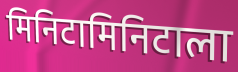
मिनिटामिनिटाला